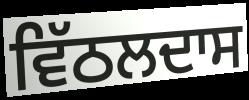
ਵਿੱਠਲਦਾਸ